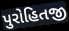
પુરોહિતજી